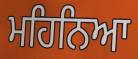
ਮਹਿਨਿਆ